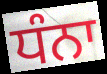
ਧੰਨਾ